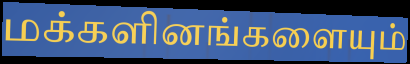
மக்களினங்களையும்